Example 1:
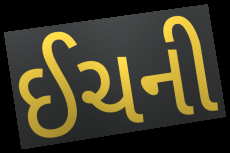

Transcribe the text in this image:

ઈચની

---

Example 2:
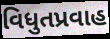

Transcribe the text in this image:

વિધુતપ્રવાહ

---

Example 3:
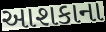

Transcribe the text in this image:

આશકાના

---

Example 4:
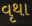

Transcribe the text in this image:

વૃથા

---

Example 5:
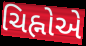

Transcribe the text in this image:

ચિહ્નોએ